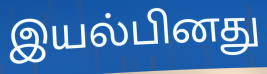
இயல்பினது